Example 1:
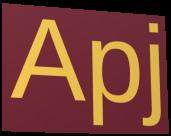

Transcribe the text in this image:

Apj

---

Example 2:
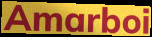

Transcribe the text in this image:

Amarboi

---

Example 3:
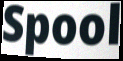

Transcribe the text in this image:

Spool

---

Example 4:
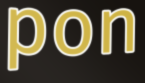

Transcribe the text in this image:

pon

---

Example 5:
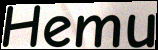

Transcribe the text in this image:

Hemu